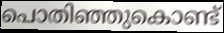
പൊതിഞ്ഞുകൊണ്ട്